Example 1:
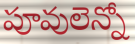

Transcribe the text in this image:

పూవులెన్నో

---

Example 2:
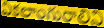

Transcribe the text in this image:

వికలాంగురాలిని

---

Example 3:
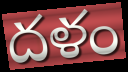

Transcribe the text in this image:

దళం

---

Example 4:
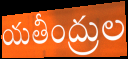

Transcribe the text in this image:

యతీంద్రుల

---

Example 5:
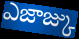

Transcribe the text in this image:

ఎజాజ్కు